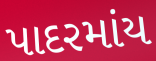
પાદરમાંય